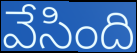
వేసింది